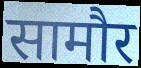
सामौर